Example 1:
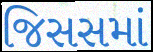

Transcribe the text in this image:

જિસસમાં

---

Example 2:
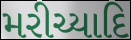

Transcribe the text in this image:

મરીચ્યાદિ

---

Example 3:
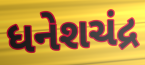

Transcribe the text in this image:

ધનેશચંદ્ર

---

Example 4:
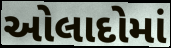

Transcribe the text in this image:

ઓલાદોમાં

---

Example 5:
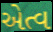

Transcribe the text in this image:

એત્વ